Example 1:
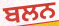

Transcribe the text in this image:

ਬਲਨ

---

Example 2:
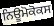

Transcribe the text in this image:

ਨਿਊਮੋਕੋਕਸ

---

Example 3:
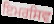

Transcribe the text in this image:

ਇਮਰਸਿਵ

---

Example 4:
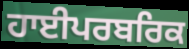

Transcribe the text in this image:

ਹਾਈਪਰਬਰਿਕ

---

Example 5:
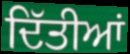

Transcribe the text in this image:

ਦਿੱਤੀਆਂ